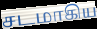
சடமாகிய